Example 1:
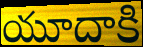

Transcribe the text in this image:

యూదాకి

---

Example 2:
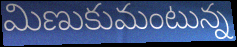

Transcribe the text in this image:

మిణుకుమంటున్న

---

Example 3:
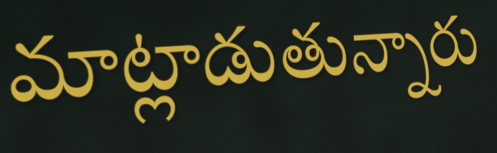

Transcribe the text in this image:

మాట్లాడుతున్నారు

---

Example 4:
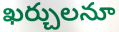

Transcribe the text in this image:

ఖర్చులనూ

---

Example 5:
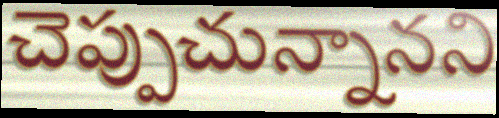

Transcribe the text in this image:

చెప్పుచున్నానని